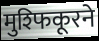
मुश्फिकूरने